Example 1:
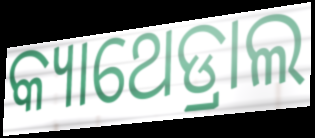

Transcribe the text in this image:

କ୍ୟାଥେଡ୍ରାଲ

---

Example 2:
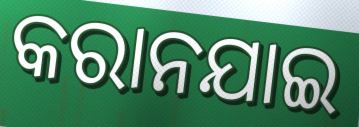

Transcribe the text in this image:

କରାନଯାଇ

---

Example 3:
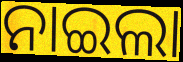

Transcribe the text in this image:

ନାଇଲା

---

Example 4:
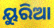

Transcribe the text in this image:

ୟୁରିଆ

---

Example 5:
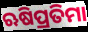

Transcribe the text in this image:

ଋଷିପ୍ରତିମା